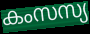
കംസസ്യ